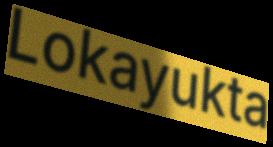
Lokayukta